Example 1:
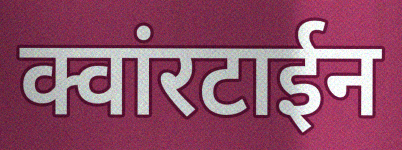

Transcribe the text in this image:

क्वांरटाईन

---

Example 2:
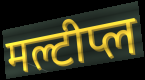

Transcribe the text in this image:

मल्टीप्ल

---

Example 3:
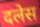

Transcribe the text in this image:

दलेस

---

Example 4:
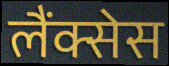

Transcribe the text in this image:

लैंक्सेस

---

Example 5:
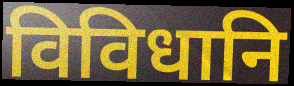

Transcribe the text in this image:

विविधानि